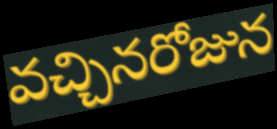
వచ్చినరోజున